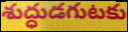
శుద్ధుడగుటకు